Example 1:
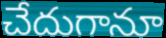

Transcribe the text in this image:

చేదుగానూ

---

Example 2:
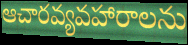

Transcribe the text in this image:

ఆచారవ్యవహారాలను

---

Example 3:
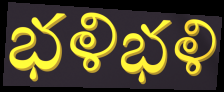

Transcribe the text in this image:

భళిభళి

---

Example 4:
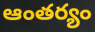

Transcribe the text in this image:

ఆంతర్యం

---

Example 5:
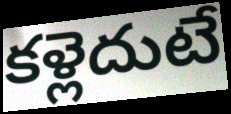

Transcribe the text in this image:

కళ్లెదుటే